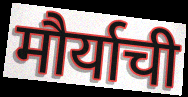
मौर्याची